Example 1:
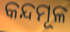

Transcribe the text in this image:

କନ୍ଦମୂଳ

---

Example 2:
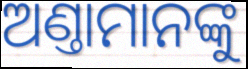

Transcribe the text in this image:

ଅଣ୍ତାମାନଙ୍କୁ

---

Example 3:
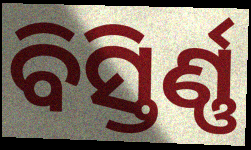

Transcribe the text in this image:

ବିସ୍ତିର୍ଣ୍ଣ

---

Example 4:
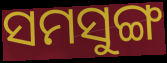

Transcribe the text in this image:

ସମସୁଙ୍ଗ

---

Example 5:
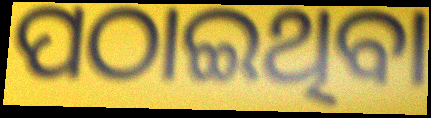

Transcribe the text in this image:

ପଠାଇଥିବା